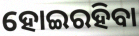
ହୋଇରହିବା